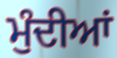
ਮੁੰਦੀਆਂ